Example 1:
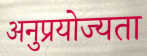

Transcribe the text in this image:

अनुप्रयोज्यता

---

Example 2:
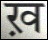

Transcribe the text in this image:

ख़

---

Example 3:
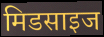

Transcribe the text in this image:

मिडसाइज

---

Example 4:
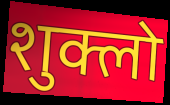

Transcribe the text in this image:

शुक्लो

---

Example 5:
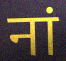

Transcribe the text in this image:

नां